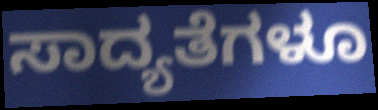
ಸಾದ್ಯತೆಗಳೂ